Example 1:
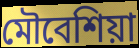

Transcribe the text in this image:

মৌবেশিয়া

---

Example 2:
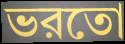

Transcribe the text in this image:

ভরতো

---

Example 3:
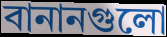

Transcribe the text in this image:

বানানগুলো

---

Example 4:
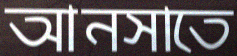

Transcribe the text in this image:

আনসাতে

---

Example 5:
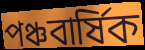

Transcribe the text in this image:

পঞ্চবার্ষিক